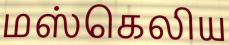
மஸ்கெலிய